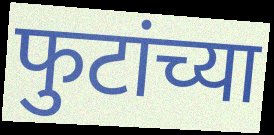
फुटांच्‍या